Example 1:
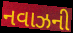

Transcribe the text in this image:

નવાઝની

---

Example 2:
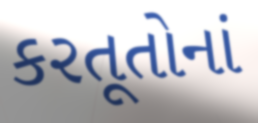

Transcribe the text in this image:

કરતૂતોનાં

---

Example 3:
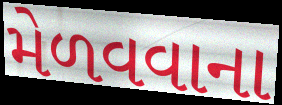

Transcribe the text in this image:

મેળવવાના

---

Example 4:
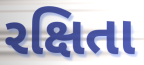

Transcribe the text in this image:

રક્ષિતા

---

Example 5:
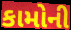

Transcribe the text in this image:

કામોની